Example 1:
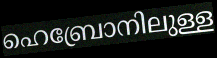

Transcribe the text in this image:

ഹെബ്രോനിലുള്ള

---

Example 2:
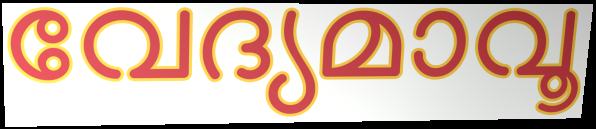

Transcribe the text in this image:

വേദ്യമാവൂ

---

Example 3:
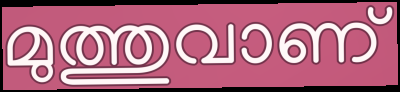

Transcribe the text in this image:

മുത്തുവാണ്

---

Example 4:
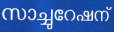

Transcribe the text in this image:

സാച്ചുറേഷന്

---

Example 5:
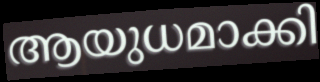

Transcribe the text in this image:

ആയുധമാക്കി